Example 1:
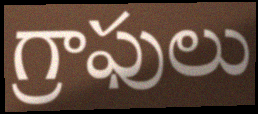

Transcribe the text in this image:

గ్రాఫులు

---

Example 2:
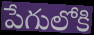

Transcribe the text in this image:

పేగులోకి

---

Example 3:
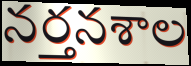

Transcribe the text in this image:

నర్తనశాల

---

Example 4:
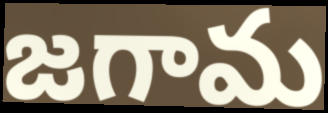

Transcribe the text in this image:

జగామ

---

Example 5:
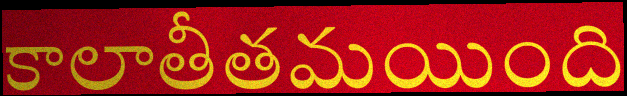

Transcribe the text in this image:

కాలాతీతమయింది